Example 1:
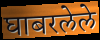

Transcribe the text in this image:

घाबरलेले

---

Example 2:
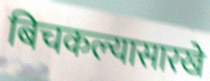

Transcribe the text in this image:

बिचकल्यासारखे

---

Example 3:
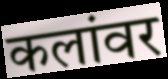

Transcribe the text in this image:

कलांवर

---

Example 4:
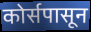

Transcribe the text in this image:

कोर्सपासून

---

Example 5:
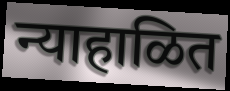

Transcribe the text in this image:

न्याहाळित